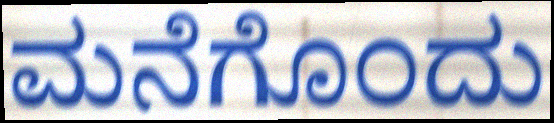
ಮನೆಗೊಂದು